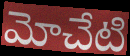
మోచేటి